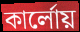
কার্লোয়